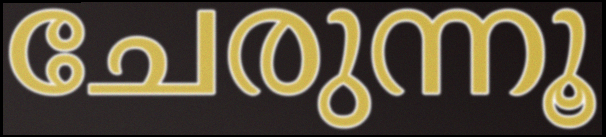
ചേരുന്നൂ